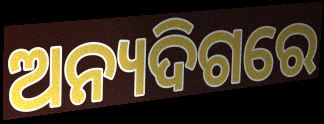
ଅନ୍ୟଦିଗରେ